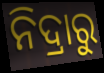
ନିଦ୍ରାରୁ